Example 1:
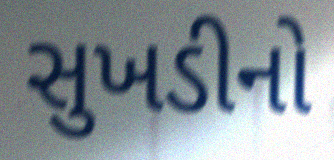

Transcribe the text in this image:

સુખડીનો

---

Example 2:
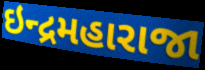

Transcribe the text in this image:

ઇન્દ્રમહારાજા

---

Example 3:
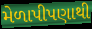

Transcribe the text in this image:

મેળાપીપણાથી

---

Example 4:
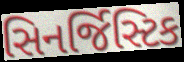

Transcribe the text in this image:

સિનર્જિસ્ટિક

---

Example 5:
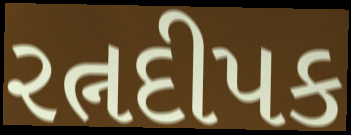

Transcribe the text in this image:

રત્નદીપક